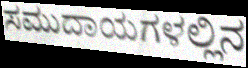
ಸಮುದಾಯಗಳಲ್ಲಿನ